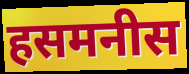
हसमनीस